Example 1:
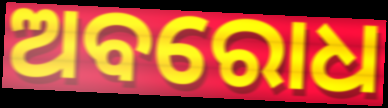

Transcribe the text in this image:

ଅବରୋଧ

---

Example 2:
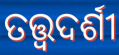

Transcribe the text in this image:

ତତ୍ତ୍ଵଦର୍ଶୀ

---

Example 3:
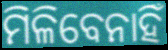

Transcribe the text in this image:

ମିଳିବେନାହିଁ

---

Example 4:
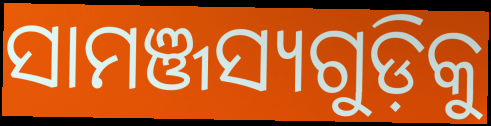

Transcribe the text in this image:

ସାମଞ୍ଜସ୍ୟଗୁଡ଼ିକୁ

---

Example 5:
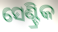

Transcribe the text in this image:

ସେଣ୍ଟ୍ରିକ